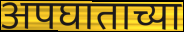
अपघाताच्या